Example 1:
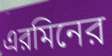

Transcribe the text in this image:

এরমিনের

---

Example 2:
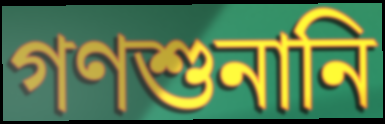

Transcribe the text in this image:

গণশুনানি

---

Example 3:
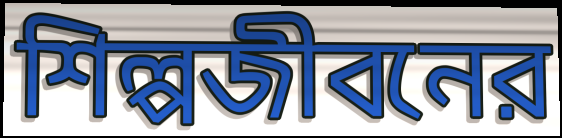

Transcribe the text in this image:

শিল্পজীবনের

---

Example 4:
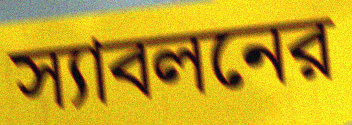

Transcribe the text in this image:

স্যাবলনের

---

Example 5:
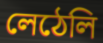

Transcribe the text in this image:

লেঠেলি